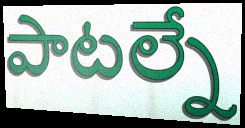
పాటల్నే